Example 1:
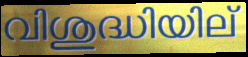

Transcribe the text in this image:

വിശുദ്ധിയില്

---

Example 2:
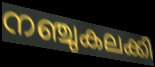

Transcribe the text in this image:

നഞ്ചുകലക്കി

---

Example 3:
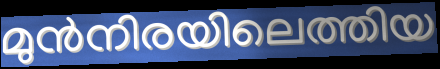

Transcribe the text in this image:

മുൻനിരയിലെത്തിയ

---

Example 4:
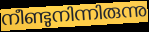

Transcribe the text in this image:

നീണ്ടുനിന്നിരുന്നു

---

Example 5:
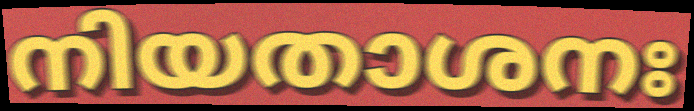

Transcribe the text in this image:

നിയതാശനഃ